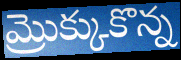
మ్రొక్కుకొన్న